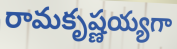
రామకృష్ణయ్యగా